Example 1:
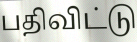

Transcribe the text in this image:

பதிவிட்டு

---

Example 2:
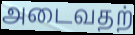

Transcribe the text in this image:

அடைவதற்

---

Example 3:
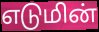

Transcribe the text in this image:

எடுமின்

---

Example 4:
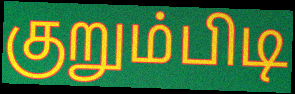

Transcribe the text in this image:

குறும்பிடி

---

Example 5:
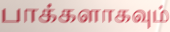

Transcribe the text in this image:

பாக்களாகவும்